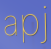
apj